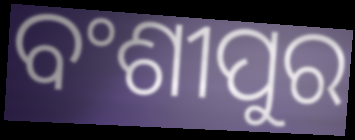
ବଂଶୀପୁର